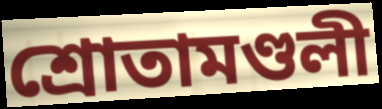
শ্রোতামণ্ডলী